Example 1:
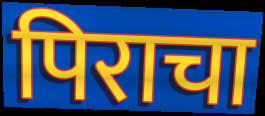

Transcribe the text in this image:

पिराचा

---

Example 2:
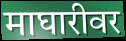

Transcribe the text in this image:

माघारीवर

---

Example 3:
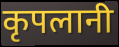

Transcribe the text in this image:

कृपलानी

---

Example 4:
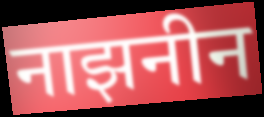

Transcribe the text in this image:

नाझनीन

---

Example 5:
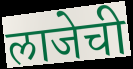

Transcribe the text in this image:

लाजेची